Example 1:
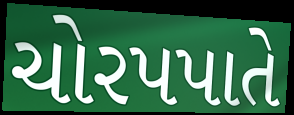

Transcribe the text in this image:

ચોરપપાતે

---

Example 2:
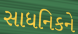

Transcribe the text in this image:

સાધનિકને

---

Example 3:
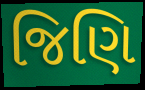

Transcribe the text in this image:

જિણિ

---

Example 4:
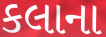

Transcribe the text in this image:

કલાના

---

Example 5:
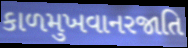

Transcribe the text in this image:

કાળમુખવાનરજાતિ